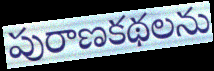
పురాణకథలను